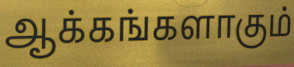
ஆக்கங்களாகும்